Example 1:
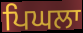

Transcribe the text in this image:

ਪਿਘਲਾ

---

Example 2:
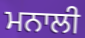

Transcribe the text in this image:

ਮਨਾਲੀ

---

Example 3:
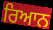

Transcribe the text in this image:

ਰਿਆਨ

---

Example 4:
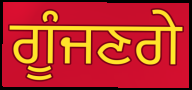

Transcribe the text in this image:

ਗੂੰਜਣਗੇ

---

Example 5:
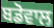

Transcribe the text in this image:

ਬਡੋਵਾਲ